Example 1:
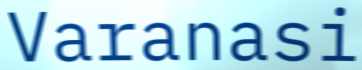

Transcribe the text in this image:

Varanasi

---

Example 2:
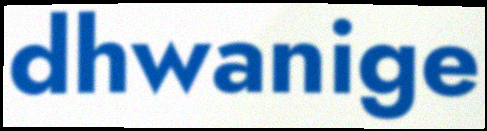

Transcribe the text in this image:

dhwanige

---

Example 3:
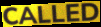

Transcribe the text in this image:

CALLED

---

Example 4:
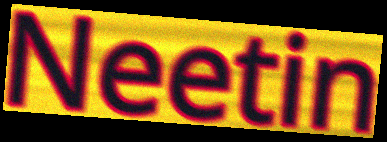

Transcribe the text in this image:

Neetin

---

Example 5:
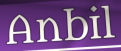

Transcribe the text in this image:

Anbil